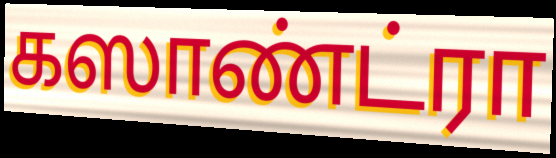
கஸாண்ட்ரா